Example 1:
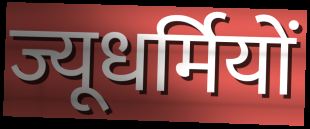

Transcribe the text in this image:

ज्यूधर्मियों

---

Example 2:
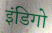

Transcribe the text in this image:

इंडिगो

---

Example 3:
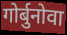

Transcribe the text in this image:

गोर्बुनोवा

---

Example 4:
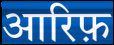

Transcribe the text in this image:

आरिफ़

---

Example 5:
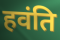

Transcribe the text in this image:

हवंति